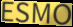
ESMO